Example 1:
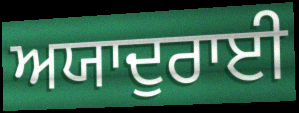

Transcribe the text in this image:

ਅਯਾਦੁਰਾਈ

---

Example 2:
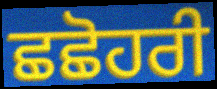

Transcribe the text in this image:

ਛਛੋਹਰੀ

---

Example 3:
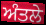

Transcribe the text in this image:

ਅੰਤਲੇ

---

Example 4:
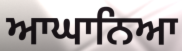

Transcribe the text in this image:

ਆਘਾਨਿਆ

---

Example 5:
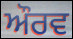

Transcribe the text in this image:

ਔਰਵ